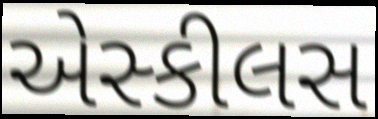
એસ્કીલસ